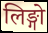
लिङ्गो